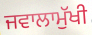
ਜਵਾਲਾਮੁੱਖੀ